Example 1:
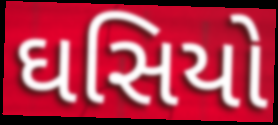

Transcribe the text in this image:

ઘસિયો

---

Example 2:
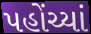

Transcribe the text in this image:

પહોંચ્યાં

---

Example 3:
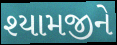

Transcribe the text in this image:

શ્યામજીને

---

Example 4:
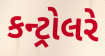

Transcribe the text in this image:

કન્ટ્રોલરે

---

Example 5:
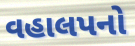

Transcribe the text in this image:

વહાલપનો